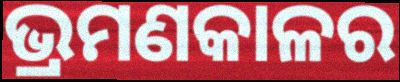
ଭ୍ରମଣକାଳର